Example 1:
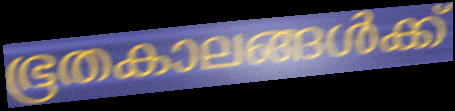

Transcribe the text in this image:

ഭൂതകാലങ്ങൾക്ക്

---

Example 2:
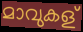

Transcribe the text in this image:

മാവുകള്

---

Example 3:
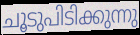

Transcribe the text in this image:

ചൂടുപിടിക്കുന്നു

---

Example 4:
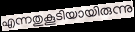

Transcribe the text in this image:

എന്നതുകൂടിയായിരുന്നു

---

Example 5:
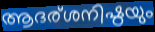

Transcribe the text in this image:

ആദര്ശനിഷ്ഠയും